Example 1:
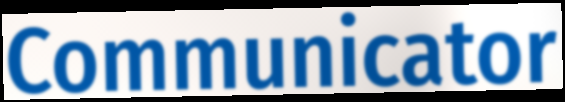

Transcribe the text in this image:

Communicator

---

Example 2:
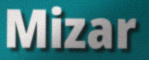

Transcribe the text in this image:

Mizar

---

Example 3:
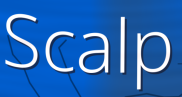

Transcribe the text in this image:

Scalp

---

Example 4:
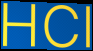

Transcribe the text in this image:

HCI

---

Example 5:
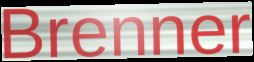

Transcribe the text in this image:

Brenner